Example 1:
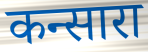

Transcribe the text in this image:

कन्सारा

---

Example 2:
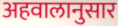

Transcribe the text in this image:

अहवालानुसार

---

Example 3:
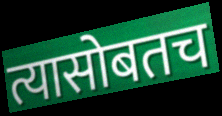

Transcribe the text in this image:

त्यासोबतच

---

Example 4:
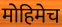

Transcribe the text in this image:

मोहिमेच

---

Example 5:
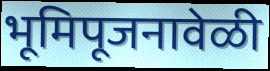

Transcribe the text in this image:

भूमिपूजनावेळी